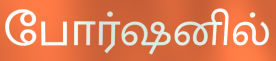
போர்ஷனில்